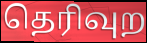
தெரிவுற